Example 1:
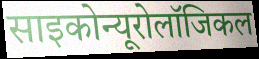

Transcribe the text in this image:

साइकोन्यूरोलॉजिकल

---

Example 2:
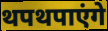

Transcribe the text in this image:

थपथपाएंगे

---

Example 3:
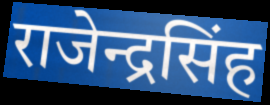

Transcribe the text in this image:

राजेन्द्रसिंह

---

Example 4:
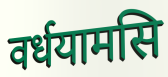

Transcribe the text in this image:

वर्धयामसि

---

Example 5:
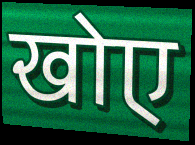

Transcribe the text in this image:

खोए